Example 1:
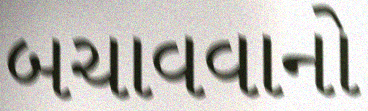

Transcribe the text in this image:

બચાવવાનો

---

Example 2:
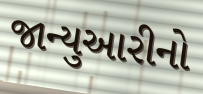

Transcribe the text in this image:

જાન્યુઆરીનો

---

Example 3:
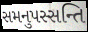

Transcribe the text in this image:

સમનુપસ્સન્તિ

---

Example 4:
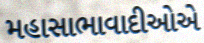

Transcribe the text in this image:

મહાસાભાવાદીઓએ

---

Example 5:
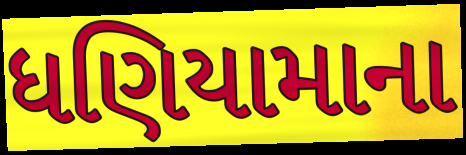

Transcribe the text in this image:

ધણિયામાના